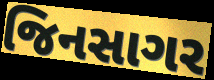
જિનસાગર